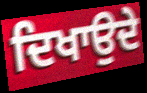
ਦਿਖਾਉਦੇ